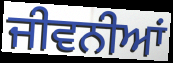
ਜੀਵਨੀਆਂ